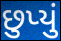
છુપ્યું